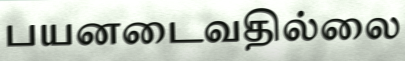
பயனடைவதில்லை